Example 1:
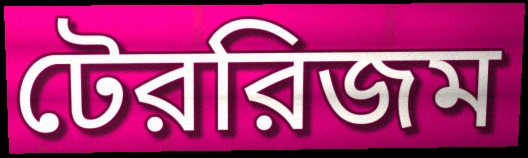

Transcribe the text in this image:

টেররিজম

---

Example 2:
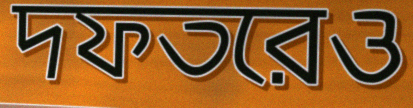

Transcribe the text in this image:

দফতরেও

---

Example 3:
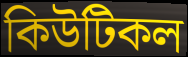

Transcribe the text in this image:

কিউটিকল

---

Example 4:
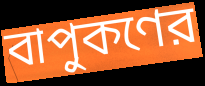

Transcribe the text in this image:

বাপুকণের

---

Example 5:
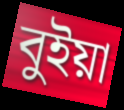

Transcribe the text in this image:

বুইয়া